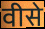
वीसे